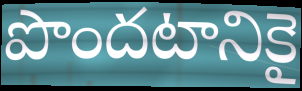
పొందటానికై